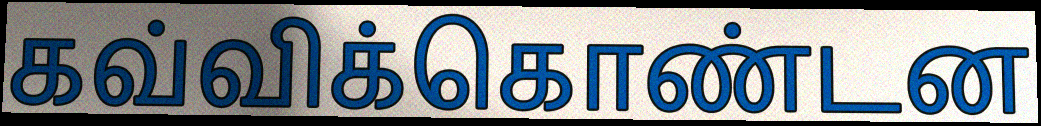
கவ்விக்கொண்டன